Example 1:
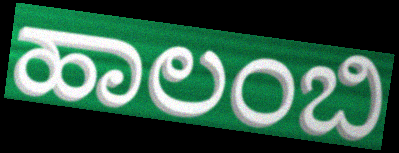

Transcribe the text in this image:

ಹಾಲಂಬಿ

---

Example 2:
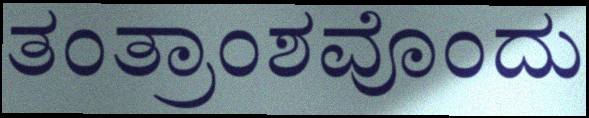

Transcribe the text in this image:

ತಂತ್ರಾಂಶವೊಂದು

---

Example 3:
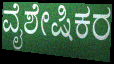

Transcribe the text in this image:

ವೈಶೇಷಿಕರ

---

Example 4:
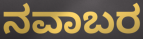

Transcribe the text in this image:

ನವಾಬರ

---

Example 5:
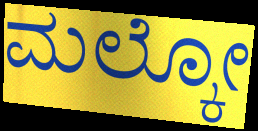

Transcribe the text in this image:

ಮಲ್ಕೋ